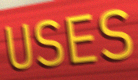
USES